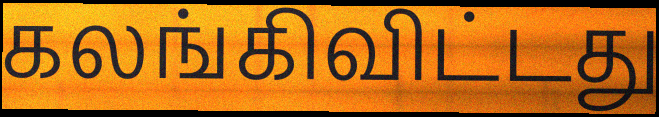
கலங்கிவிட்டது